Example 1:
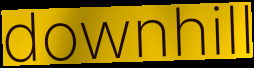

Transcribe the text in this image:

downhill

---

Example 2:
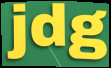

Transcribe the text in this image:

jdg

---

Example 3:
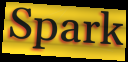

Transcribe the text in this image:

Spark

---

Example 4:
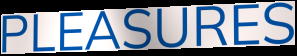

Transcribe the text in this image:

PLEASURES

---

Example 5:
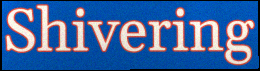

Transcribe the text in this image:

Shivering